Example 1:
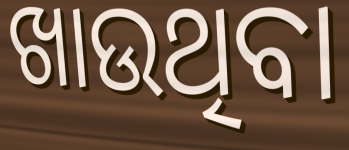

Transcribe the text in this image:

ଖାଉଥିବା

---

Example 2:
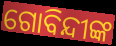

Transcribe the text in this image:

ଗୋବିନ୍ଦୀଙ୍କ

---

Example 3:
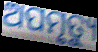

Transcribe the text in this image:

ଅପମୃତ୍ୟୁ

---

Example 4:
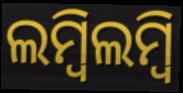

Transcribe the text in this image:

ଲମ୍ବିଲମ୍ବି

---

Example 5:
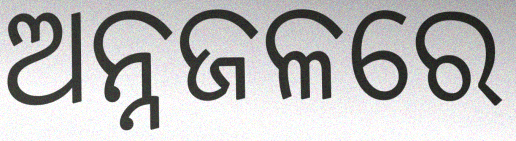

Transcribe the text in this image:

ଅନ୍ନଜଳରେ